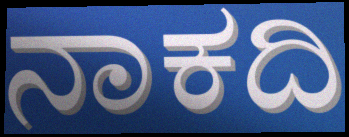
ನಾಕದಿ